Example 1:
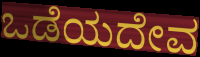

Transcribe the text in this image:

ಒಡೆಯದೇವ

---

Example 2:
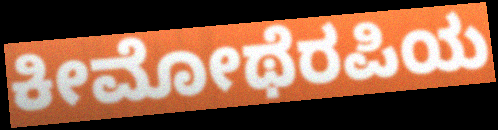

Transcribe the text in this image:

ಕೀಮೋಥೆರಪಿಯ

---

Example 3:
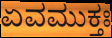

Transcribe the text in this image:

ಏವಮುಕ್ತಃ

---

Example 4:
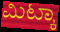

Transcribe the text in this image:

ಮಿಟ್ಕಾ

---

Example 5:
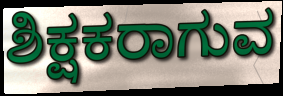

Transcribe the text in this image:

ಶಿಕ್ಷಕರಾಗುವ